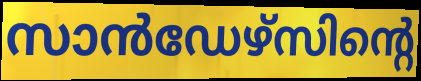
സാൻഡേഴ്സിന്റെ